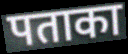
पताका